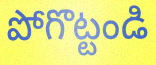
పోగొట్టండి